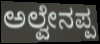
ಅಲ್ವೇನಪ್ಪ